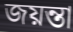
জয়ন্তা